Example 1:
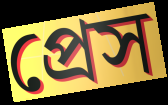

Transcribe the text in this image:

প্রেস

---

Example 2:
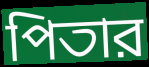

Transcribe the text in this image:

পিতার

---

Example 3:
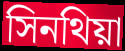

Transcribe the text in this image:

সিনথিয়া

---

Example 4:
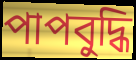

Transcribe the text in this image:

পাপবুদ্ধি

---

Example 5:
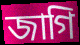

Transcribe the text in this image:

জাগি